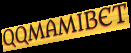
QQMAMIBET